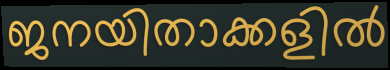
ജനയിതാക്കളിൽ